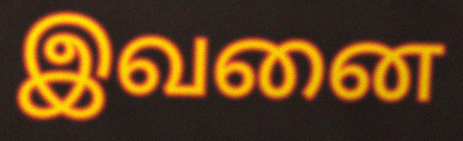
இவனை